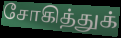
சோகித்துக்